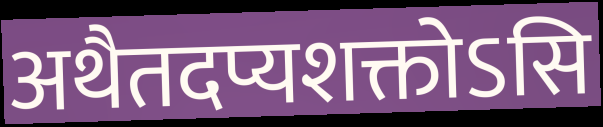
अथैतदप्यशक्तोऽसि